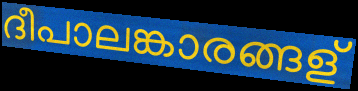
ദീപാലങ്കാരങ്ങള്